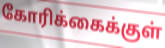
கோரிக்கைக்குள்